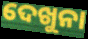
ଦେଖୁନା